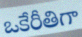
ఒకేరీతిగా